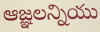
ఆజ్ఞలన్నియు